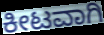
ಕೀಟವಾಗಿ